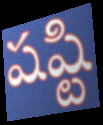
షష్టి